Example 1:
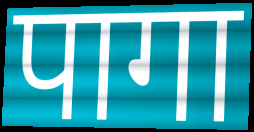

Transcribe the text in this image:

पागा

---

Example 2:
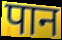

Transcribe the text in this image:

पान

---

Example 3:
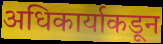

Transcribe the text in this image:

अधिकार्याकडून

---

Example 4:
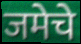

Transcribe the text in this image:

जमेचे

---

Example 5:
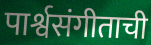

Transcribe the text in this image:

पार्श्वसंगीताची